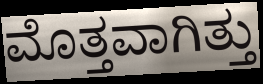
ಮೊತ್ತವಾಗಿತ್ತು